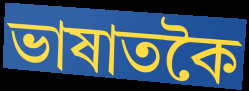
ভাষাতকৈ